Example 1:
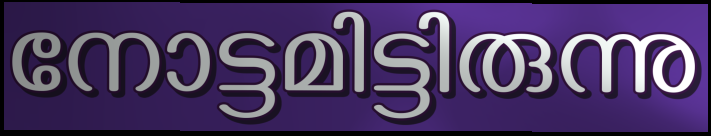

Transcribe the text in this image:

നോട്ടമിട്ടിരുന്നു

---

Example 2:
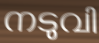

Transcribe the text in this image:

നടുവി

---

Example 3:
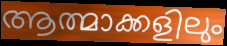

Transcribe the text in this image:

ആത്മാക്കളിലും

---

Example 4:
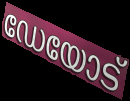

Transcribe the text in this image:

ഡേയോട്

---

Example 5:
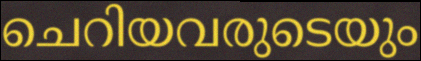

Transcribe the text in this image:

ചെറിയവരുടെയും